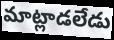
మాట్లాడలేడు